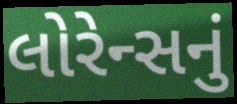
લોરેન્સનું